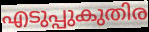
എടുപ്പുകുതിര